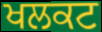
ਖਲਕਟ